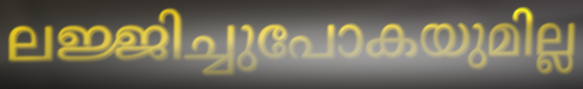
ലജ്ജിച്ചുപോകയുമില്ല